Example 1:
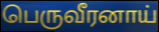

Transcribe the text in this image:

பெருவீரனாய்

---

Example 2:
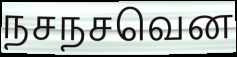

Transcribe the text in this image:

நசநசவென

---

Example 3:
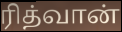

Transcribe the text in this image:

ரித்வான்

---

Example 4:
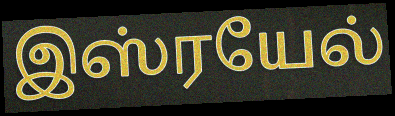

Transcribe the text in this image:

இஸ்ரயேல்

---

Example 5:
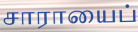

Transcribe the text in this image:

சாராயைப்